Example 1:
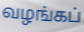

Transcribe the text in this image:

வழங்கப்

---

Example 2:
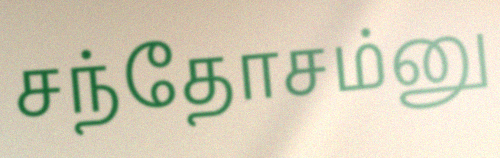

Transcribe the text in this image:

சந்தோசம்னு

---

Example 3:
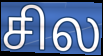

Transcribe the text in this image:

சில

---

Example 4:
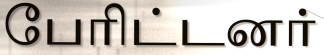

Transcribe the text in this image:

பேரிட்டனர்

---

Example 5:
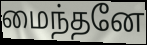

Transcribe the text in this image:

மைந்தனே